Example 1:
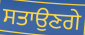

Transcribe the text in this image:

ਸਤਾਉਣਗੇ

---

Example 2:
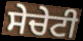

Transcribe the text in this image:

ਸੇਚੇਟੀ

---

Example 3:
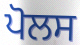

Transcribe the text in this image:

ਪੋਲਸ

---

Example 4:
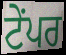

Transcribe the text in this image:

ਟੇਂਪਰ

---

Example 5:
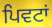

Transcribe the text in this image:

ਪਿਵਟਾਂ